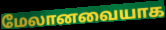
மேலானவையாக